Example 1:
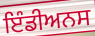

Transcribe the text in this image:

ਇੰਡੀਅਨਸ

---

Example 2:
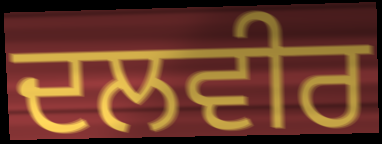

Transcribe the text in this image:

ਦਲਵੀਰ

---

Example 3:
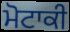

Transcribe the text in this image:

ਮੋਟਾਕੀ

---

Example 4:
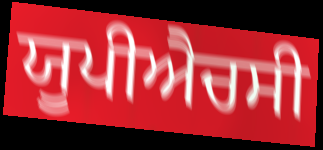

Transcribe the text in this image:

ਯੂਪੀਐਚਸੀ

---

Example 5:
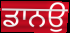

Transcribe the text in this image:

ਡਾਨਉ